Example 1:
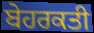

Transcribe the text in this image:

ਬੇਹਰਕਤੀ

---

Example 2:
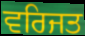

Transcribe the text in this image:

ਵਰਿਜਤ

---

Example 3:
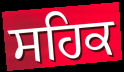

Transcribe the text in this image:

ਸਹਿਕ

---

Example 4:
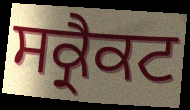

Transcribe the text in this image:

ਸਕ੍ਰੈਕਟ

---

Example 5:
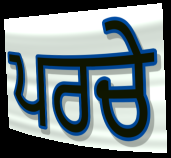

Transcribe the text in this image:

ਪਰਚੇ